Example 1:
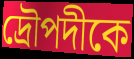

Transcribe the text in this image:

দ্রৌপদীকে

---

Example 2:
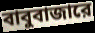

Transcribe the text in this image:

বাবুবাজারে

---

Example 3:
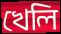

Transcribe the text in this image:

খেলি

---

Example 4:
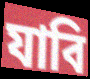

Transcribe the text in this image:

যাবি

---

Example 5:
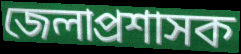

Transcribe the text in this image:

জেলাপ্রশাসক